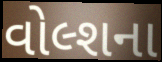
વોલ્શના